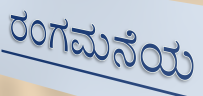
ರಂಗಮನೆಯ